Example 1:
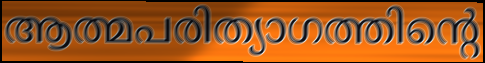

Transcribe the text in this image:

ആത്മപരിത്യാഗത്തിന്റെ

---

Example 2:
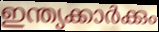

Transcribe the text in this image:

ഇന്ത്യക്കാർക്കും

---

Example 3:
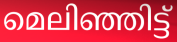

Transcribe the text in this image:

മെലിഞ്ഞിട്ട്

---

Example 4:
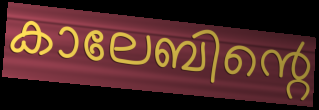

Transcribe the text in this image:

കാലേബിന്റെ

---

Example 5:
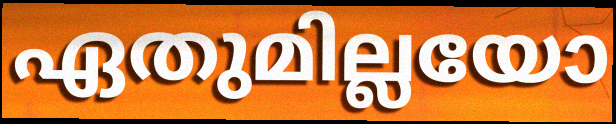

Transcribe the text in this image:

ഏതുമില്ലയോ